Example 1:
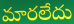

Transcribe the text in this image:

మారలేదు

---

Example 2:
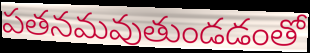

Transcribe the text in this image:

పతనమవుతుండడంతో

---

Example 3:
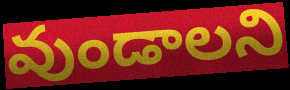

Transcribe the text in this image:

వుండాలని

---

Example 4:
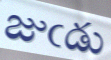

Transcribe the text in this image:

జుఁడు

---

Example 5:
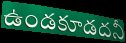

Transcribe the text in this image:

ఉండకూడదనీ